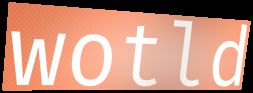
wotld